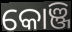
କୋଞ୍ଜି